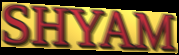
SHYAM